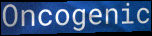
Oncogenic